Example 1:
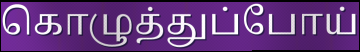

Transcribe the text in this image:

கொழுத்துப்போய்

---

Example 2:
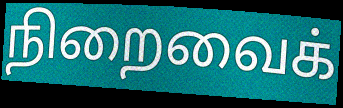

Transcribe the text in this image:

நிறைவைக்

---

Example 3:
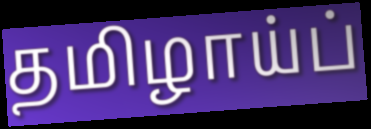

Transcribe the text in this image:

தமிழாய்ப்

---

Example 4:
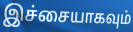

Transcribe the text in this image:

இச்சையாகவும்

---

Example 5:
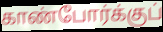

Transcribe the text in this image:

காண்போர்க்குப்